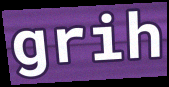
grih